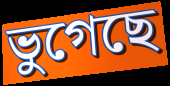
ভুগেছে